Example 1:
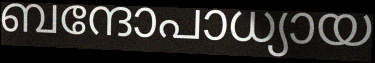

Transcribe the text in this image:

ബന്ദോപാധ്യായ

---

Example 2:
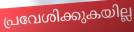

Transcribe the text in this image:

പ്രവേശിക്കുകയില്ല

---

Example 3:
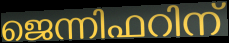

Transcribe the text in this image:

ജെന്നിഫറിന്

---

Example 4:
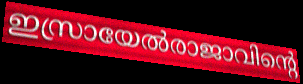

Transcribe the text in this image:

ഇസ്രായേൽരാജാവിന്റെ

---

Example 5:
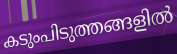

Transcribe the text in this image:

കടുംപിടുത്തങ്ങളിൽ